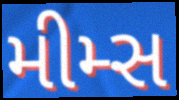
મીમ્સ